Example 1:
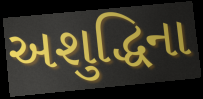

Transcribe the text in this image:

અશુદ્ધિના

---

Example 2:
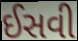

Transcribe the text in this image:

ઈસવી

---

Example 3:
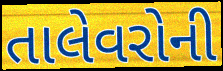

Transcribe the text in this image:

તાલેવરોની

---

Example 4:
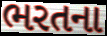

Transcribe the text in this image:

ભરતના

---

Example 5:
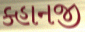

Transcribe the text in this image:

ક્હાનજી